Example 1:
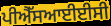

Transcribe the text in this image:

ਪੀਐੱਸਆਈਈਸੀ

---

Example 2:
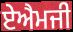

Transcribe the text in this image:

ਏਐਮਜੀ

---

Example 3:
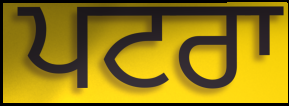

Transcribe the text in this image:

ਪਟਰਾ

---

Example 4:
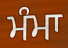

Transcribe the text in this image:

ਮੰਮਾ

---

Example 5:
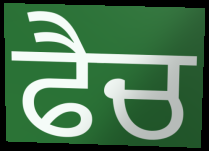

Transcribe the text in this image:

ਫੈਚ